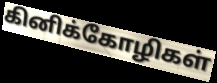
கினிக்கோழிகள்